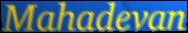
Mahadevan